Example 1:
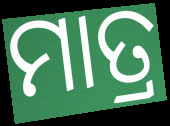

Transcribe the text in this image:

ମାତ୍ର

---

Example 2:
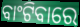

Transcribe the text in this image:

ବାଂଟିବାରେ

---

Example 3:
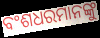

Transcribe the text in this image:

ବଂଶଧରମାନଙ୍କୁ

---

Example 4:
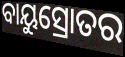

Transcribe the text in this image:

ବାୟୁସ୍ରୋତର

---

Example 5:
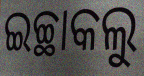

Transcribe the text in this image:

ଇଚ୍ଛାକଲୁ